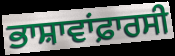
ਭਾਸ਼ਾਵਾਂਫ਼ਾਰਸੀ